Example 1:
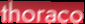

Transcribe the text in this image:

thoraco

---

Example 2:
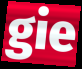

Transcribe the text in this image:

gie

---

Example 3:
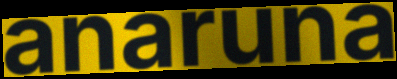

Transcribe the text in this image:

anaruna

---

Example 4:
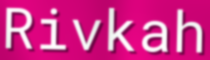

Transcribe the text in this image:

Rivkah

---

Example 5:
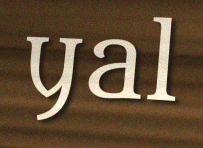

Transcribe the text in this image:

yal